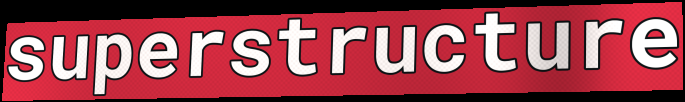
superstructure